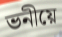
ভনীয়ে